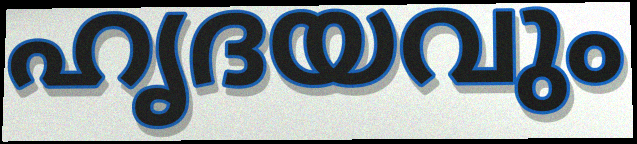
ഹൃദയവും